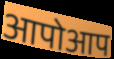
आपोआप